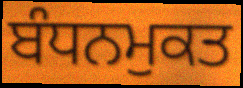
ਬੰਧਨਮੁਕਤ